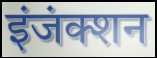
इंजंक्शन